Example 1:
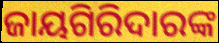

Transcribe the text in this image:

ଜାୟଗିରିଦାରଙ୍କ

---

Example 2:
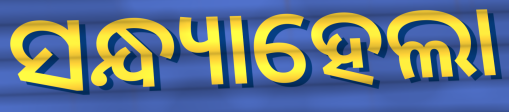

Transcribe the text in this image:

ସନ୍ଧ୍ୟାହେଲା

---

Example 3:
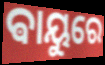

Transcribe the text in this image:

ଵାୟୁରେ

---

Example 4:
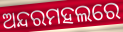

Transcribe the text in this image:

ଅନ୍ଦରମହଲରେ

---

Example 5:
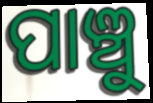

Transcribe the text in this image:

ପାଞ୍ଚୁ